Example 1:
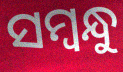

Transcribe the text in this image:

ସମ୍ବନ୍ଧୁ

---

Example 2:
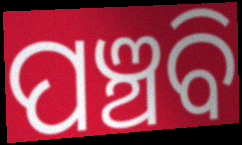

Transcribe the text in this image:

ପଞ୍ଚବି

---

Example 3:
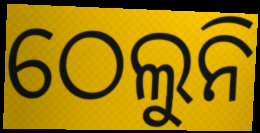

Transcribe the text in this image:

ଠେଲୁନି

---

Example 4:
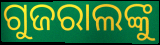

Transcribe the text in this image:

ଗୁଜରାଲଙ୍କୁ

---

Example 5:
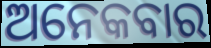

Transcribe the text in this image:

ଅନେକବାର